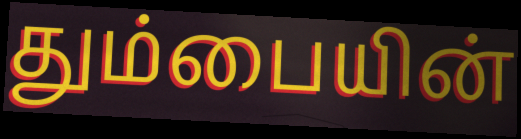
தும்பையின்